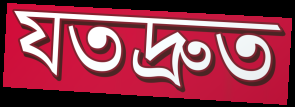
যতদ্রুত